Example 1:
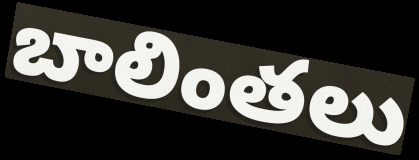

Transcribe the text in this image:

బాలింతలు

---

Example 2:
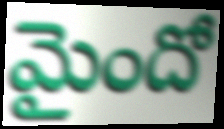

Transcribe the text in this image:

మైందో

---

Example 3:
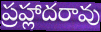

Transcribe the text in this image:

ప్రహ్లాదరావు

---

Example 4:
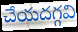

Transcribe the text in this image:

చేయదగ్గవి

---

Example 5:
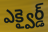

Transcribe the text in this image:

ఎక్వైర్డ్